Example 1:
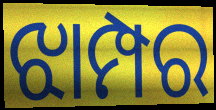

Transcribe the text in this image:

ଝାମ୍ପର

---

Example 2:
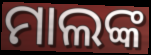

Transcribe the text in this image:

ମାଲଙ୍କ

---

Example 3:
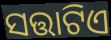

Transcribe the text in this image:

ସତ୍ତାଟିଏ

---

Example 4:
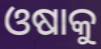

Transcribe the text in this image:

ଓଷାକୁ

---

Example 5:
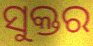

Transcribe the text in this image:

ସୁକ୍ତର